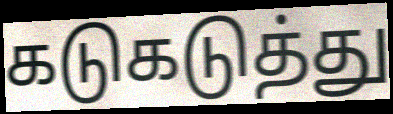
கடுகடுத்து